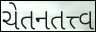
ચેતનતત્ત્વ